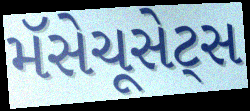
મૅસેચૂસેટ્સ